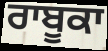
ਰਾਬੂਕਾ